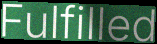
Fulfilled